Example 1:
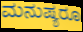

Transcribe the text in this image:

ಮನುಷ್ಯರೂ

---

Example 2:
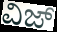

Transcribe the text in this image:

ವಿಜ್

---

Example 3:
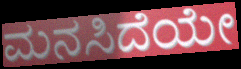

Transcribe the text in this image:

ಮನಸಿದೆಯೇ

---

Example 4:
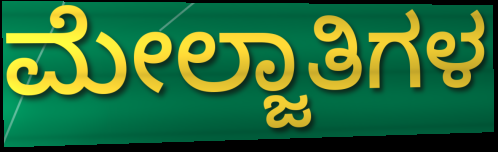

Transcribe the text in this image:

ಮೇಲ್ಜಾತಿಗಳ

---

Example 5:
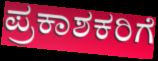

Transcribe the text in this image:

ಪ್ರಕಾಶಕರಿಗೆ